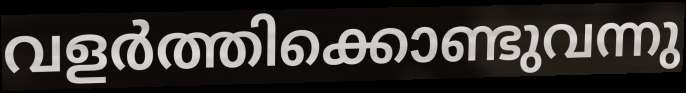
വളർത്തിക്കൊണ്ടുവന്നു